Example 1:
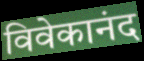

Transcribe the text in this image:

विवेकानंद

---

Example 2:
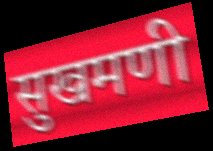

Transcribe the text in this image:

सुखमणी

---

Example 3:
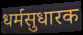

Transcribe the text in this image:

धर्मसुधारक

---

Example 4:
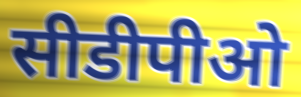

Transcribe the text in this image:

सीडीपीओ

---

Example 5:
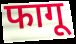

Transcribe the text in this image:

फागू